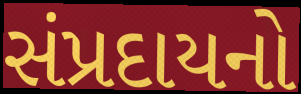
સંપ્રદાયનો